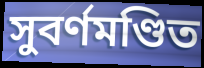
সুবর্ণমণ্ডিত